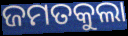
ଜମତକୁଲା